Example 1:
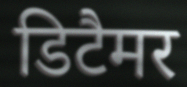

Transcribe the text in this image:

डिटैमर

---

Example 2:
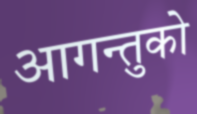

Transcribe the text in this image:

आगन्तुको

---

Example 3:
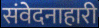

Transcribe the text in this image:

संवेदनाहारी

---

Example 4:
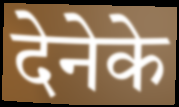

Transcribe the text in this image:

देनेके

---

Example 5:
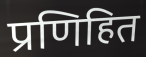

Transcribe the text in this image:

प्रणिहित